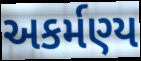
અકર્મણ્ય